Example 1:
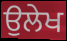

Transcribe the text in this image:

ਉਲੇਖ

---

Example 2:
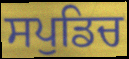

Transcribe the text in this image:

ਸਪੁਡਿਚ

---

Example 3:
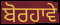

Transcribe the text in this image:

ਬੋਰਹਾਵੇ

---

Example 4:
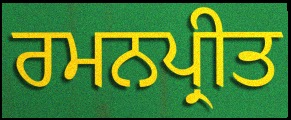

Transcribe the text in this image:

ਰਮਨਪ੍ਰੀਤ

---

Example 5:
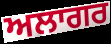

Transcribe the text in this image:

ਅਲਾਗਰ